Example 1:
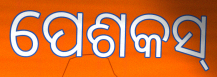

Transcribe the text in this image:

ପେଶକସ୍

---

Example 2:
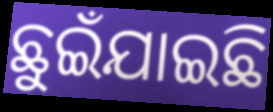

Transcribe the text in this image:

ଛୁଇଁଯାଇଛି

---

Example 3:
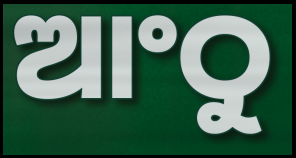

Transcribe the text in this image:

ଆଂଠୁ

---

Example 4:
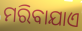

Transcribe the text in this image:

ମରିବାଯାଏ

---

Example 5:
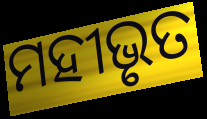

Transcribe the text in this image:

ମହୀଭୃତ